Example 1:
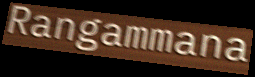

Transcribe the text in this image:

Rangammana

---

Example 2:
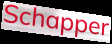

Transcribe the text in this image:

Schapper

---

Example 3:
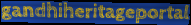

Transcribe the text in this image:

gandhiheritageportal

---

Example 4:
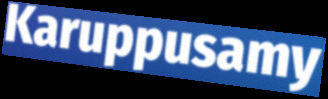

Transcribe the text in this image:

Karuppusamy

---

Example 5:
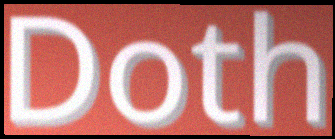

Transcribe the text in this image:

Doth